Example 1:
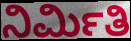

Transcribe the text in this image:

ನಿರ್ಮಿತಿ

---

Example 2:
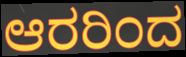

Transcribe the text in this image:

ಆರರಿಂದ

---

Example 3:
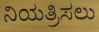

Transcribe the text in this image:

ನಿಯತ್ರಿಸಲು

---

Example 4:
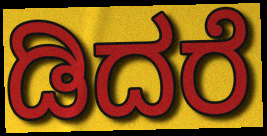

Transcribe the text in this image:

ಡಿದರೆ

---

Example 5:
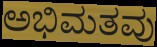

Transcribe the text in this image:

ಅಭಿಮತವು